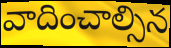
వాదించాల్సిన